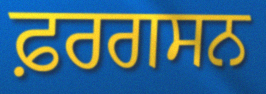
ਫ਼ਰਗਸਨ